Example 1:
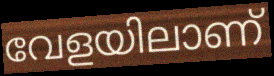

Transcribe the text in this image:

വേളയിലാണ്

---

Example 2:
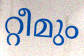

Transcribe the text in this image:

റ്റീമും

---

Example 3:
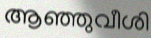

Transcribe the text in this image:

ആഞ്ഞുവീശി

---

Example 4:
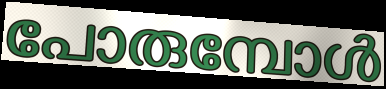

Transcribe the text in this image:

പോരുമ്പോൾ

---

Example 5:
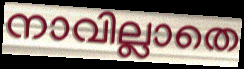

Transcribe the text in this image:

നാവില്ലാതെ